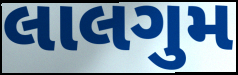
લાલગુમ